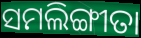
ସମଲିଙ୍ଗୀତା